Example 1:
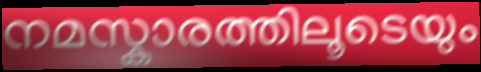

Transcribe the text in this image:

നമസ്കാരത്തിലൂടെയും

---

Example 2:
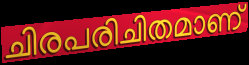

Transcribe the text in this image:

ചിരപരിചിതമാണ്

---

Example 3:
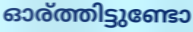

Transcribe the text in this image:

ഓര്ത്തിട്ടുണ്ടോ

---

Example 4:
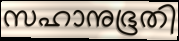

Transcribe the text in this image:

സഹാനുഭൂതി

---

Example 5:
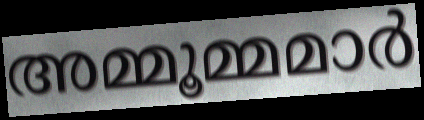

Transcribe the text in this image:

അമ്മൂമ്മമാർ